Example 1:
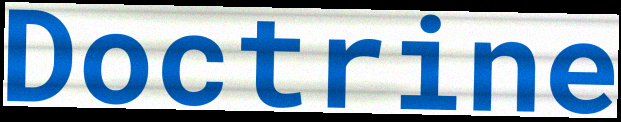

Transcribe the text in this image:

Doctrine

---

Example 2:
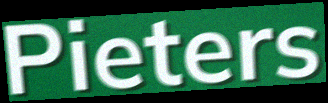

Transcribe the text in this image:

Pieters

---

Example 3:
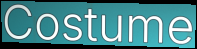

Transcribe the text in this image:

Costume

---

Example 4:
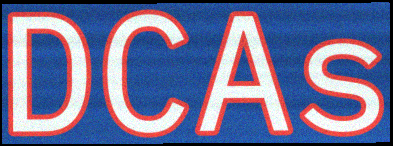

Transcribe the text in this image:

DCAs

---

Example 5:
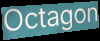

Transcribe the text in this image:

Octagon